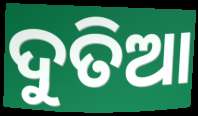
ଦୁତିଆ